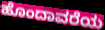
ಹೊಂದಾವರೆಯ